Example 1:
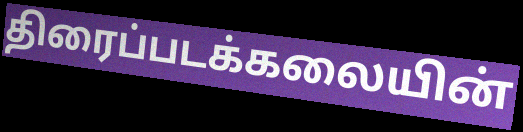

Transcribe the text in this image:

திரைப்படக்கலையின்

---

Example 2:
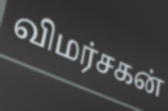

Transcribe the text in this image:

விமர்சகன்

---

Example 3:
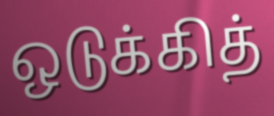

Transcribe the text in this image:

ஒடுக்கித்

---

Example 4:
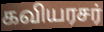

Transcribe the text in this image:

கவியரசர்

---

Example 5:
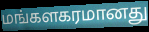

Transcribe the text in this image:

மங்களகரமானது